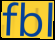
fbl